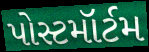
પોસ્ટમૉર્ટમ